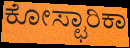
ಕೋಸ್ಟಾರಿಕಾ